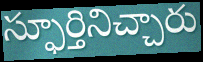
స్ఫూర్తినిచ్చారు